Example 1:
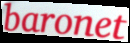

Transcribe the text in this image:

baronet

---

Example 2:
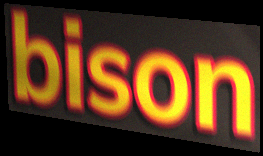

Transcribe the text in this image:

bison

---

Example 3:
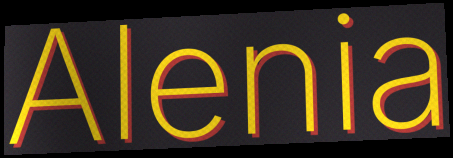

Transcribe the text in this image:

Alenia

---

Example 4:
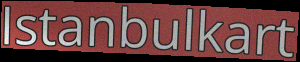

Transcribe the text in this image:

Istanbulkart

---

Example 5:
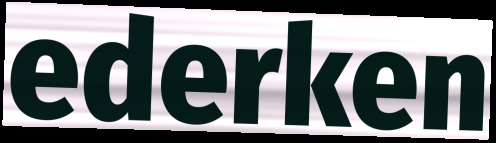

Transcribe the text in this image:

ederken